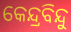
କେନ୍ଦ୍ରବିନ୍ଦୁ